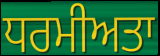
ਧਰਮੀਅਤਾ